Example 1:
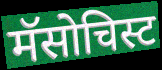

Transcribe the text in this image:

मॅसोचिस्ट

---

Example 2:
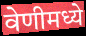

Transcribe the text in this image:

वेणीमध्ये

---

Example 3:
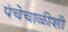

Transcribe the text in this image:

पंचेचाळीशी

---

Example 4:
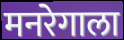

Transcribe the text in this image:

मनरेगाला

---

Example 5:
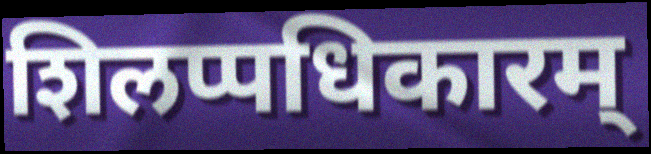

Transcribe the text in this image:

शिलप्पधिकारम्